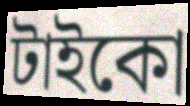
টাইকো